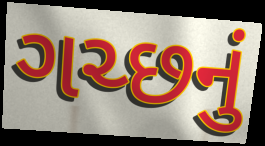
ગચ્છનું